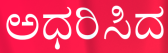
ಅಧರಿಸಿದ